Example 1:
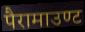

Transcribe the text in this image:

पैरामाउण्ट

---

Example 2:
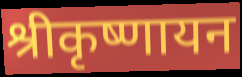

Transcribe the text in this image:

श्रीकृष्णायन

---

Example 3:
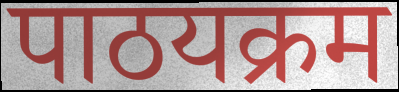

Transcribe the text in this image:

पाठयक्रम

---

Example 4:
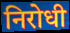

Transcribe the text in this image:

निरोधी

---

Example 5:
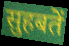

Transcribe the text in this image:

सुहबतें